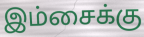
இம்சைக்கு